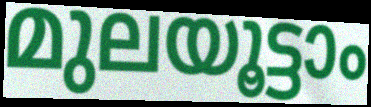
മുലയൂട്ടാം